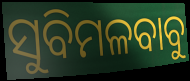
ସୁବିମଳବାବୁ